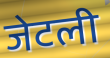
जेटली